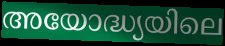
അയോദ്ധ്യയിലെ